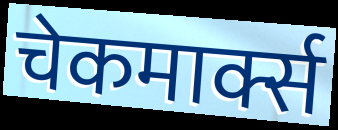
चेकमार्क्स